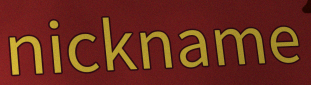
nickname